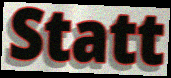
Statt